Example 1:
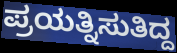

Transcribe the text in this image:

ಪ್ರಯತ್ನಿಸುತಿದ್ದ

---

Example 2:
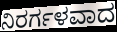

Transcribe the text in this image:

ನಿರರ್ಗಳವಾದ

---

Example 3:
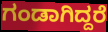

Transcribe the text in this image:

ಗಂಡಾಗಿದ್ದರೆ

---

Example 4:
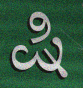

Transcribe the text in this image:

ಷಿ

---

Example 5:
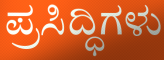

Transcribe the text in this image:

ಪ್ರಸಿದ್ಧಿಗಳು